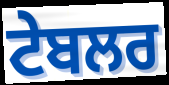
ਟੇਬਲਰ